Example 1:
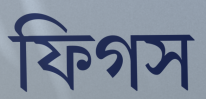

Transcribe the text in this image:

ফিগস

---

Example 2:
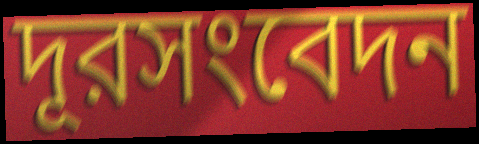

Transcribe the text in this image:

দূরসংবেদন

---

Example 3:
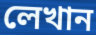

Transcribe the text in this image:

লেখান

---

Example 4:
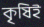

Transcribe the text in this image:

কৃষিই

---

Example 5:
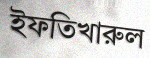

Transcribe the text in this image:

ইফতিখারুল